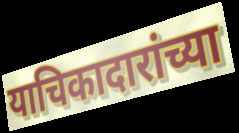
याचिकादारांच्या